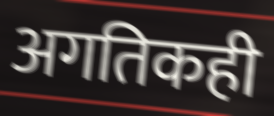
अगतिकही